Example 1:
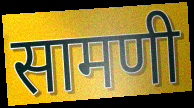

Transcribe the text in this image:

सामणी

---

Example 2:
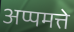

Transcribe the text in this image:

अप्पमत्ते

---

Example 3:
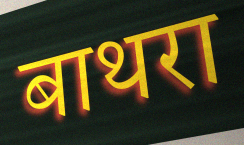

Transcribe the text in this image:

बाथरा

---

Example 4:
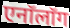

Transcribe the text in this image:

एनॉलॉग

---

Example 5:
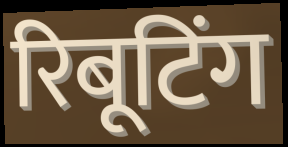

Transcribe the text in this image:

रिबूटिंग